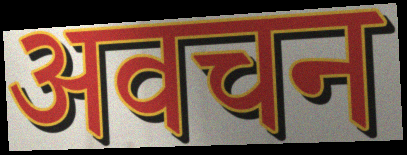
अवचन